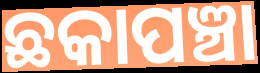
ଛକାପଞ୍ଚା